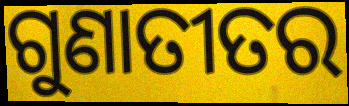
ଗୁଣାତୀତର